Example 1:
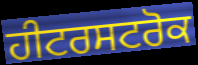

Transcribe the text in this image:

ਹੀਟਰਸਟਰੋਕ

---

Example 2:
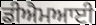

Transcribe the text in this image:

ਡੀਐਮਆਈ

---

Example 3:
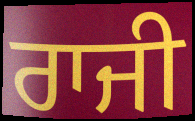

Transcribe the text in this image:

ਰਾਜੀ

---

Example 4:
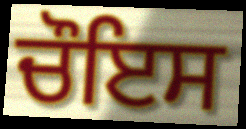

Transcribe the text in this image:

ਚੌਇਸ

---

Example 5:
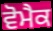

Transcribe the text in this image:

ਵੋਮੈਕ